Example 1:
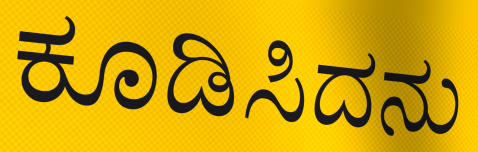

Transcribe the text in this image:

ಕೂಡಿಸಿದನು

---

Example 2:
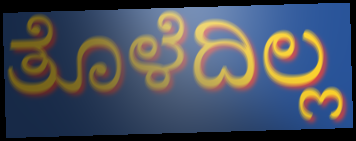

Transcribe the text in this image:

ತೊಳೆದಿಲ್ಲ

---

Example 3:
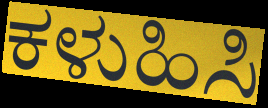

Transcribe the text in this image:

ಕಳುಹಿಸಿ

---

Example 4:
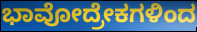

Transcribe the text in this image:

ಭಾವೋದ್ರೇಕಗಳಿಂದ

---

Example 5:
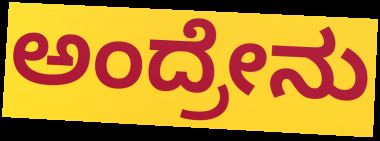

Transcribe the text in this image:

ಅಂದ್ರೇನು